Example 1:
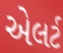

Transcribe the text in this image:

એલર્ટ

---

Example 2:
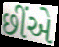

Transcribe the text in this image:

છીંએ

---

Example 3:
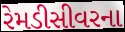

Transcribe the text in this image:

રેમડીસીવરના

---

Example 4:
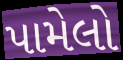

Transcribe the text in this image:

પામેલો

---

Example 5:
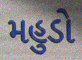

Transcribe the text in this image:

મહુડો